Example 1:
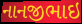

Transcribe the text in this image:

નાનજીભાઇ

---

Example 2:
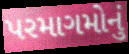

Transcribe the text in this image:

પરમાગમોનું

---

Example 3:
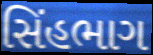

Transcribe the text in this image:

સિંહભાગ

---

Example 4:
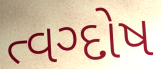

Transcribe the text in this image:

ત્વગ્દોષ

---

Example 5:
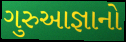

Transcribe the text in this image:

ગુરુઆજ્ઞાનો